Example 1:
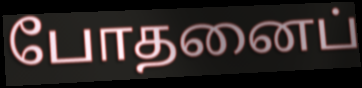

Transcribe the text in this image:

போதனைப்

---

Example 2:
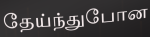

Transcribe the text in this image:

தேய்ந்துபோன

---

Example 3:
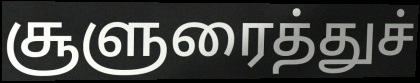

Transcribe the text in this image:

சூளுரைத்துச்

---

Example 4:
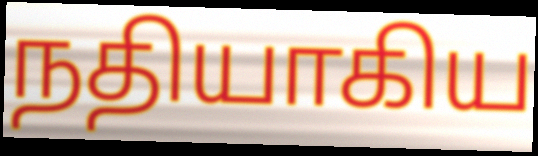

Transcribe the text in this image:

நதியாகிய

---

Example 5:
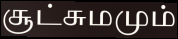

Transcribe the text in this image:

சூட்சுமமும்